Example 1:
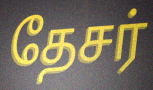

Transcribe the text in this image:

தேசர்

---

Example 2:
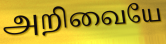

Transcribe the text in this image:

அறிவையே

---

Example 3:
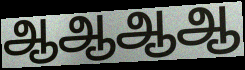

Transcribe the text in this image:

ஆஆஆஆ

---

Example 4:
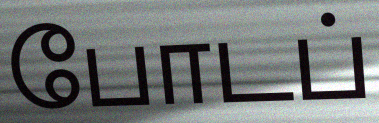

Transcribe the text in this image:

போடப்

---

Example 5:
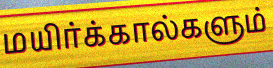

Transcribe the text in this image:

மயிர்க்கால்களும்